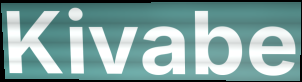
Kivabe